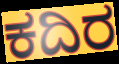
ಕದಿರ